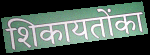
शिकायतोंका